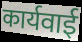
कार्यवाई